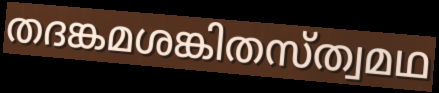
തദങ്കമശങ്കിതസ്ത്വമഥ